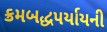
ક્રમબદ્ધપર્યાયની